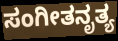
ಸಂಗೀತನೃತ್ಯ